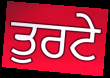
ਤੁਰਟੇ